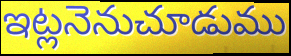
ఇట్లనెనుచూడుము